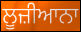
ਲੂਜ਼ੀਆਨਾ